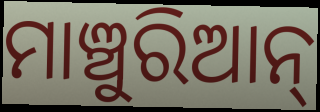
ମାଞ୍ଚୁରିଆନ୍